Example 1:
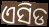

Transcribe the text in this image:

ଏସିଡ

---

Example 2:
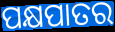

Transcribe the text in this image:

ପକ୍ଷପାତର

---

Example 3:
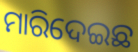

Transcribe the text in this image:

ମାରିଦେଇଛ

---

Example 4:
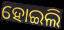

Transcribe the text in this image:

ହୋଇଲି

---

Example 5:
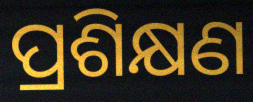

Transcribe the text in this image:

ପ୍ରଶିକ୍ଷଣ